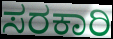
ಸರಕಾರಿ